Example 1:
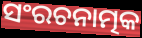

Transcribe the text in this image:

ସଂରଚନାତ୍ମକ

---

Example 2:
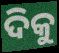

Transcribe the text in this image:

ଦିକୁ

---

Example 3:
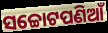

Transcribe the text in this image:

ସଚ୍ଚୋଟପଣିଆଁ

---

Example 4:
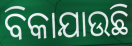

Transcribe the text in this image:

ବିକାଯାଉଛି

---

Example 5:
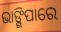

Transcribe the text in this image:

ଭାଙ୍ଗିପାରେ